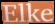
Elke